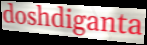
doshdiganta